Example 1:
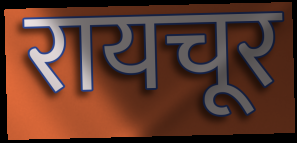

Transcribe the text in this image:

रायचूर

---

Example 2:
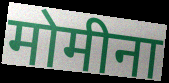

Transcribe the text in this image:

मोमीना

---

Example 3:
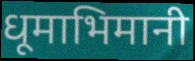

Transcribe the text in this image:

धूमाभिमानी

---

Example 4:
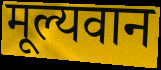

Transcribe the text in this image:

मूल्यवान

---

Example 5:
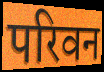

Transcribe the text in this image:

परिवन